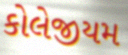
કોલેજીયમ